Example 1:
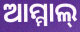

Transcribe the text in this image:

ଆମ୍ମାଲ୍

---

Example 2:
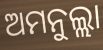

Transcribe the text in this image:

ଅମନୁଲ୍ଲା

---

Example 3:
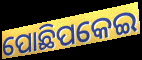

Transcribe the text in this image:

ପୋଛିପକେଇ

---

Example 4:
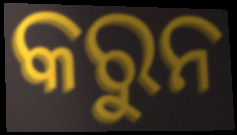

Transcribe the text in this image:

କରୁନ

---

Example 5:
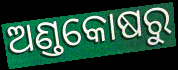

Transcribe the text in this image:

ଅଣ୍ଡକୋଷରୁ